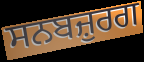
ਸਨਬਜ਼ੁਰਗ